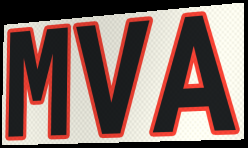
MVA